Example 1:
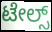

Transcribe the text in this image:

ಟೇಲ್ಸ್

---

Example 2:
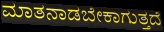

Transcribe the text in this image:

ಮಾತನಾಡಬೇಕಾಗುತ್ತದೆ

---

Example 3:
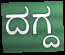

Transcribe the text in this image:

ದಗ್ದ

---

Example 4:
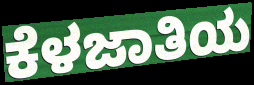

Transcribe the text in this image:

ಕೆಳಜಾತಿಯ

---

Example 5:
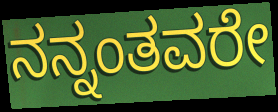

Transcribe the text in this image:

ನನ್ನಂತವರೇ